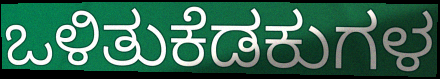
ಒಳಿತುಕೆಡಕುಗಳ